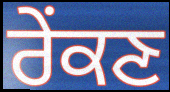
ਰੇੰਕਣ